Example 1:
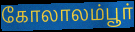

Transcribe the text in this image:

கோலாலம்பூர்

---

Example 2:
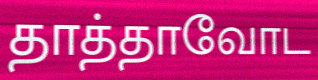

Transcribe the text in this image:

தாத்தாவோட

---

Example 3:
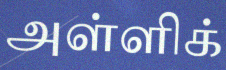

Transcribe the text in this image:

அள்ளிக்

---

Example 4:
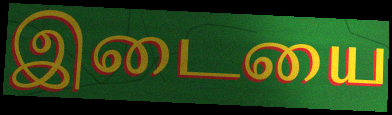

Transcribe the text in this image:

இடையை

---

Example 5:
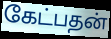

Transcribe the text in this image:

கேட்பதன்